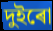
দুইৰো